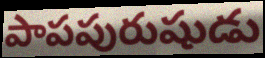
పాపపురుషుడు